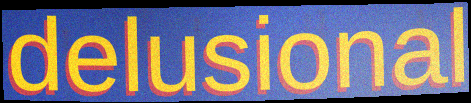
delusional